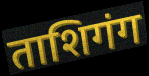
ताशिगंग